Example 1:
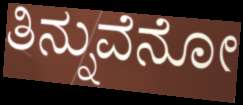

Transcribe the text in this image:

ತಿನ್ನುವೆನೋ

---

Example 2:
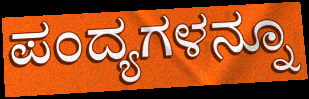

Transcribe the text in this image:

ಪಂದ್ಯಗಳನ್ನೂ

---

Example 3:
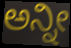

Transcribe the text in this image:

ಅನ್ನೀ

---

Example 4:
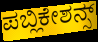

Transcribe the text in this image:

ಪಬ್ಲಿಕೇಶನ್ಸ್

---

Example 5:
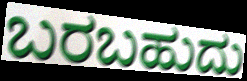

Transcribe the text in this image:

ಬರಬಹುದು